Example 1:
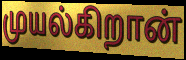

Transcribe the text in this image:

முயல்கிறான்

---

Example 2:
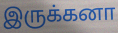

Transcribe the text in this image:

இருக்கனா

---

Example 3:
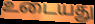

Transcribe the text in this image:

உடையது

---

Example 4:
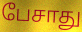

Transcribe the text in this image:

பேசாது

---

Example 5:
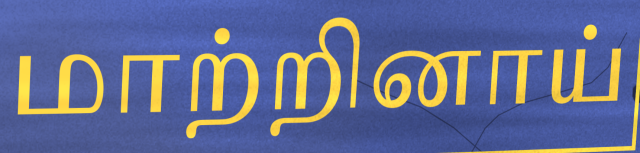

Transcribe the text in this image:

மாற்றினாய்